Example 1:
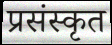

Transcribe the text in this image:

प्रसंस्कृत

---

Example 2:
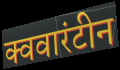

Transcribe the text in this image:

क्ववारंटीन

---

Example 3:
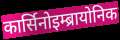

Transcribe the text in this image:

कार्सिनोइम्ब्रायोनिक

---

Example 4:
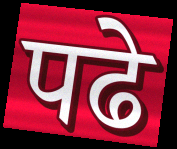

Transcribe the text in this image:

पढे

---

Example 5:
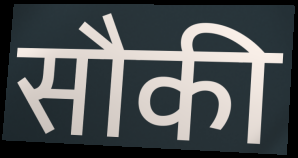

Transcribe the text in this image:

सौकी